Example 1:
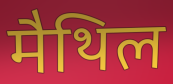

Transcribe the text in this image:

मैथिल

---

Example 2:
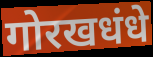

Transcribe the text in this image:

गोरखधंधे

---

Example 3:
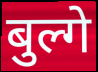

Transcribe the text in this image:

बुल्गे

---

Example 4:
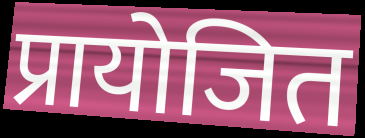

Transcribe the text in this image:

प्रायोजित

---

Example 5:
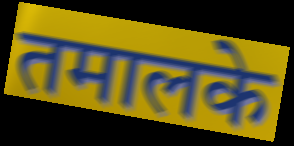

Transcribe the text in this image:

तमालके